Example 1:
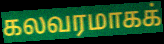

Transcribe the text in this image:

கலவரமாகக்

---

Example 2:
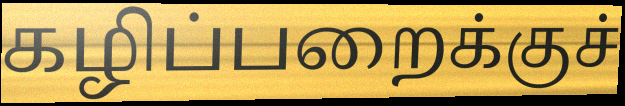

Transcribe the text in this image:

கழிப்பறைக்குச்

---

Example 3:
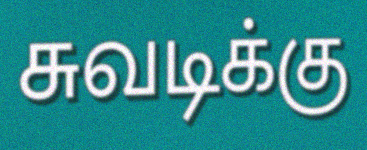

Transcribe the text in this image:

சுவடிக்கு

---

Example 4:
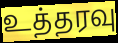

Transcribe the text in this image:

உத்தரவு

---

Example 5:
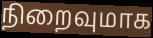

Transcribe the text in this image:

நிறைவுமாக